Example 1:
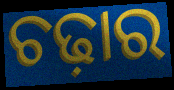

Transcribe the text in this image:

ଚଢ଼ାର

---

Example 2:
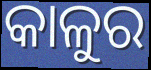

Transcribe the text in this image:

କାଳୁର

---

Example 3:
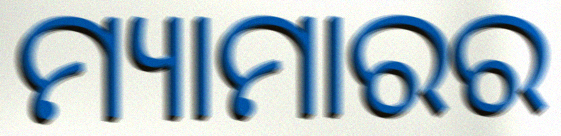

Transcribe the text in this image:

ମ୍ୟାମାରର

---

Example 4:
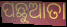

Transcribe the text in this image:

ପଛୁଆତା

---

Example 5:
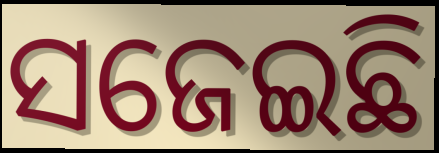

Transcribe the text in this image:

ସଜେଇଛି